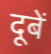
दूबें